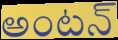
అంటన్